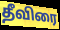
தீவிரை